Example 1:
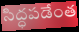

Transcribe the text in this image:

సిద్ధపడేంత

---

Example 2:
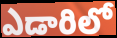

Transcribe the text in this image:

ఎడారిలో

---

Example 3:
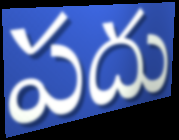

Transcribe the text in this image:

పదు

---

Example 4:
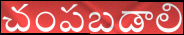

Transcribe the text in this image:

చంపబడాలి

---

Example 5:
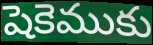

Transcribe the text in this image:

షెకెముకు